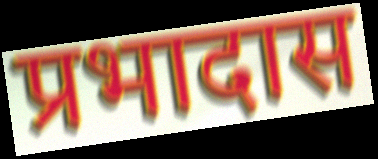
प्रभादास